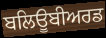
ਬਲਿਊਬੀਅਰਡ